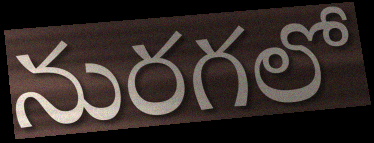
నురగలో